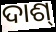
ଦାଶ୍